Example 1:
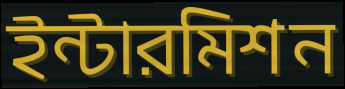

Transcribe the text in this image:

ইন্টারমিশন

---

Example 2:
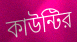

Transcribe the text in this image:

কাউন্টির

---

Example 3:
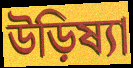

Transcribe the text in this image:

উড়িষ্যা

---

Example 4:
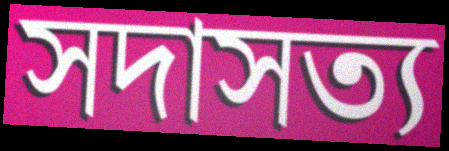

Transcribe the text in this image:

সদাসত্য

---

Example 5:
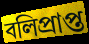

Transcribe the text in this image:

বলিপ্রাপ্ত